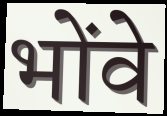
भोंवे